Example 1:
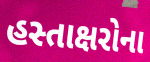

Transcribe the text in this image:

હસ્તાક્ષરોના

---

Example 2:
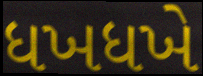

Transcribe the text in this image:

ધખધખે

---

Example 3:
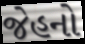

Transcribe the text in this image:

જેહનો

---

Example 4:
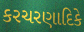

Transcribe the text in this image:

કરચરણાદિકે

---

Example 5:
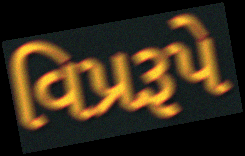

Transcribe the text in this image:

વિપ્રરૂપે